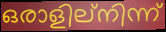
ഒരാളില്നിന്ന്